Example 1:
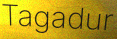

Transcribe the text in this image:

Tagadur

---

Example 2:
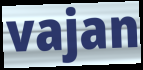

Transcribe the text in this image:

vajan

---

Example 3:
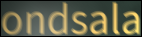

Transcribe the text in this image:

ondsala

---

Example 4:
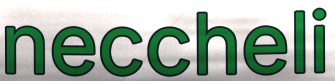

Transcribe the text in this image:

neccheli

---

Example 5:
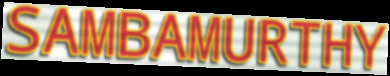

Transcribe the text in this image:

SAMBAMURTHY